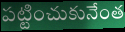
పట్టించుకునేంత